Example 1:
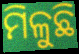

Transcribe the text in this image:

ମିଳୁଛି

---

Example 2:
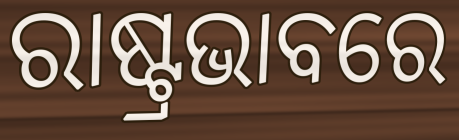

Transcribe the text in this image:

ରାଷ୍ଟ୍ରଭାବରେ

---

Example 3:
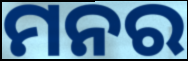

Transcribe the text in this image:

ମନର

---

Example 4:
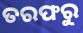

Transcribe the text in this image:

ତରଫରୁ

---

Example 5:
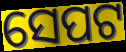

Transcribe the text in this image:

ସେପଟ